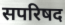
सपरिषद